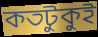
কতটুকুই